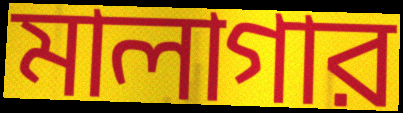
মালাগার